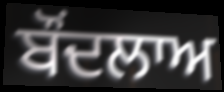
ਬੌਂਦਲਾਅ